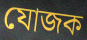
যোজক